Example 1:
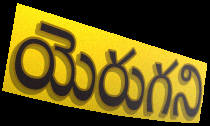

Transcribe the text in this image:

యెరుగని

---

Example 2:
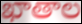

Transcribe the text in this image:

ఖాతాల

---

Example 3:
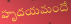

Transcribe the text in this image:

హృదయమందే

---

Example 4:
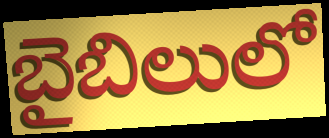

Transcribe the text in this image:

బైబిలులో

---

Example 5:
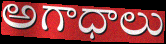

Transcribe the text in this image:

అగాధాలు